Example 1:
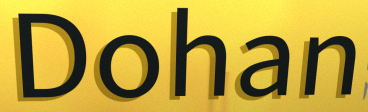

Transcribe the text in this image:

Dohan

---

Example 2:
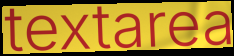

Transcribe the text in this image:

textarea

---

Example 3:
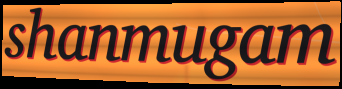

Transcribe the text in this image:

shanmugam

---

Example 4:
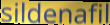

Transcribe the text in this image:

sildenafil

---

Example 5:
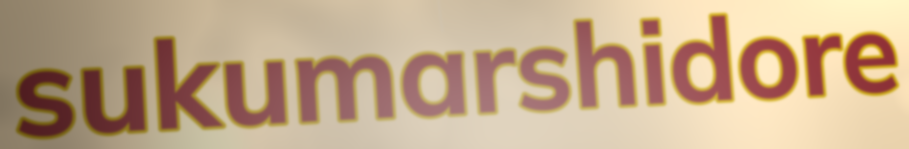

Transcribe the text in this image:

sukumarshidore